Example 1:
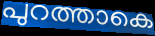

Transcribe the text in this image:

പുറത്താകെ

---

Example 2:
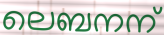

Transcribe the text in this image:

ലെബനന്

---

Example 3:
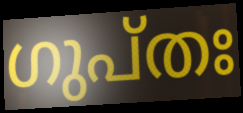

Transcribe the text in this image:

ഗുപ്തഃ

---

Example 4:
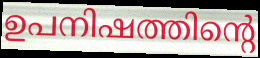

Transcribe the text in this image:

ഉപനിഷത്തിന്റെ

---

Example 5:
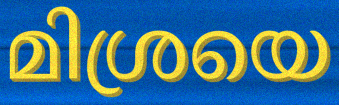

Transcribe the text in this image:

മിശ്രയെ